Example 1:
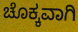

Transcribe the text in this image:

ಚೊಕ್ಕವಾಗಿ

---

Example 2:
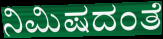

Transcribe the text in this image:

ನಿಮಿಷದಂತೆ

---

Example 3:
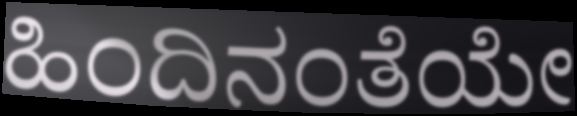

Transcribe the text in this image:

ಹಿಂದಿನಂತೆಯೇ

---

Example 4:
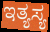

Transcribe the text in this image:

ಇತ್ಯಸ್ಯ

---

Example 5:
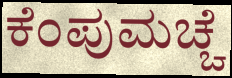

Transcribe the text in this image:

ಕೆಂಪುಮಚ್ಚೆ